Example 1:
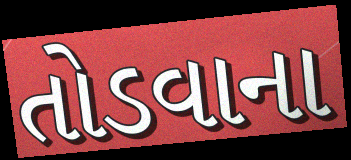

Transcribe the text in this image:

તોડવાના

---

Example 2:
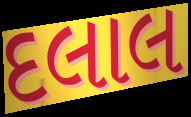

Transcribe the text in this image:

દલાલ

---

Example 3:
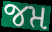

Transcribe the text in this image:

જપ્ત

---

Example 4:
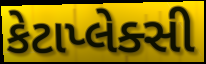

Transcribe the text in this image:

કેટાપ્લેક્સી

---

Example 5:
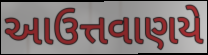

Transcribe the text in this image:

આઉત્તવાણયે